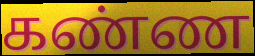
கண்ண